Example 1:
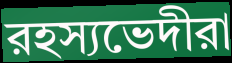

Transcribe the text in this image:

রহস্যভেদীরা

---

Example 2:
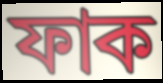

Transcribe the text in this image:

ফাক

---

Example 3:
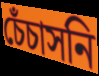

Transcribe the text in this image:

চেঁচাসনি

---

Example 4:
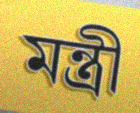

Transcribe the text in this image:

মন্ত্রী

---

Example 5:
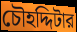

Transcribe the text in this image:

চৌহদ্দিটার